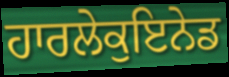
ਹਾਰਲੇਕੁਇਨੇਡ